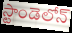
స్టాండెలోన్